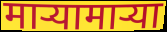
माऱ्यामाऱ्या